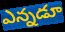
ఎన్నడూ